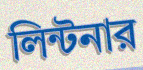
লিন্টনার